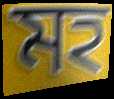
মহ